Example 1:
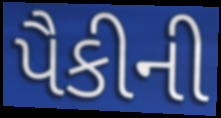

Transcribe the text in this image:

પૈકીની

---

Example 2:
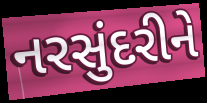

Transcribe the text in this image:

નરસુંદરીને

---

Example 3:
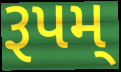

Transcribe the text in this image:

રૂપમ્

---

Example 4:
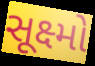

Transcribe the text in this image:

સૂક્ષ્મો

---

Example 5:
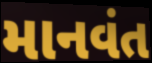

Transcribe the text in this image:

માનવંત